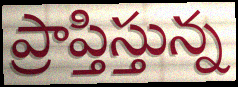
ప్రాప్తిస్తున్న